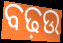
ବଢ଼ଉ